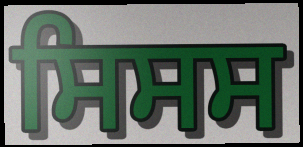
ਸਿਸਸ